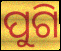
ପୁଗି